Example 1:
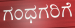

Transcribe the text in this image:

ಗಂಧಗರಿಗೆ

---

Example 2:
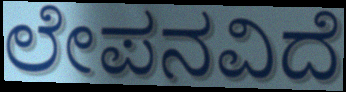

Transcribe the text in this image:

ಲೇಪನವಿದೆ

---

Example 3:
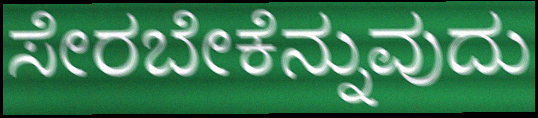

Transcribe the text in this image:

ಸೇರಬೇಕೆನ್ನುವುದು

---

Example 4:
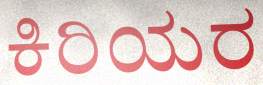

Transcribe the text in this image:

ಕಿರಿಯರ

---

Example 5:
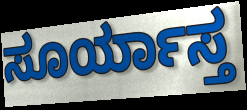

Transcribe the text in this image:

ಸೂರ್ಯಾಸ್ತ